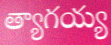
త్యాగయ్య